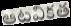
ఆటవికత